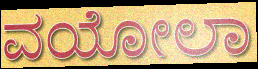
ವಯೋಲಾ